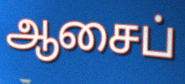
ஆசைப்